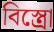
বিস্ত্রো